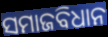
ସମାଜବିଧାନ